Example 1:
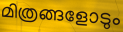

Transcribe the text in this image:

മിത്രങ്ങളോടും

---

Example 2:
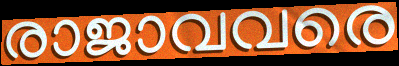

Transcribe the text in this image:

രാജാവവരെ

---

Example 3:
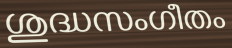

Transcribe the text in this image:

ശുദ്ധസംഗീതം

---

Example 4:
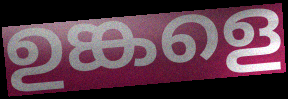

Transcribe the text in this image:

ഉങ്കളെ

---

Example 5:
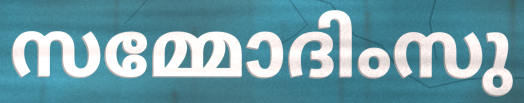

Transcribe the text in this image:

സമ്മോദിംസു